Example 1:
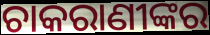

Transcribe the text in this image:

ଚାକରାଣୀଙ୍କର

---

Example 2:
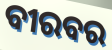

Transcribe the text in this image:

ବୀରବର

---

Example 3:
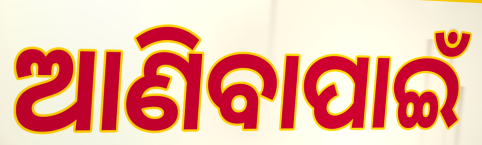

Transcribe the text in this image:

ଆଣିବାପାଇଁ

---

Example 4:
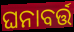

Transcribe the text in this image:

ଘନାବର୍ତ୍ତ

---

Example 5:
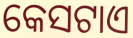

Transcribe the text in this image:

କେସଟାଏ